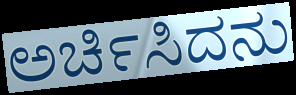
ಅರ್ಚಿಸಿದನು